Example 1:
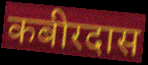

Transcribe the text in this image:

कबीरदास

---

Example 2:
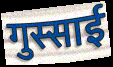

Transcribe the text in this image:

गुस्साई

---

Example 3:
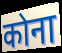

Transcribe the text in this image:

कोना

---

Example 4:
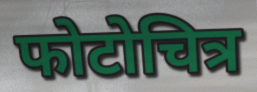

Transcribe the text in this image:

फोटोचित्र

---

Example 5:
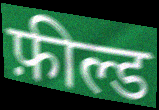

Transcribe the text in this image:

फ़ील्ड